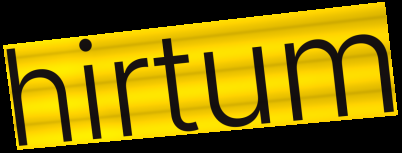
hirtum